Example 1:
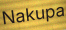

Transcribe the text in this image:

Nakupa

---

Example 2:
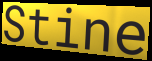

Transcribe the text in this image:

Stine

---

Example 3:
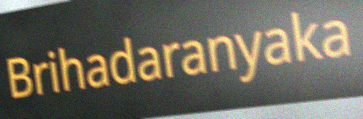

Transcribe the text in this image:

Brihadaranyaka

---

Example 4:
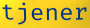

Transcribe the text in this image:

tjener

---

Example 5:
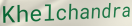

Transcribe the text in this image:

Khelchandra